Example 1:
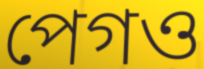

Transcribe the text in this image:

পেগও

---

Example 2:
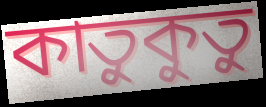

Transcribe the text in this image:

কাতুকুতু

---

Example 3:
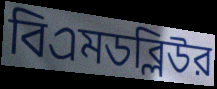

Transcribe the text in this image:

বিএমডব্লিউর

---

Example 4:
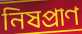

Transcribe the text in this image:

নিষপ্রাণ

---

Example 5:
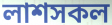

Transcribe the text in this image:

লাশসকল